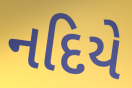
નદિયે